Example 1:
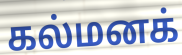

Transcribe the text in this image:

கல்மனக்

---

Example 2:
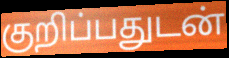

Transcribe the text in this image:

குறிப்பதுடன்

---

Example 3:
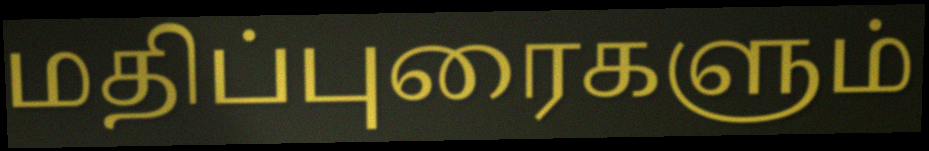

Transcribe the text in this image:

மதிப்புரைகளும்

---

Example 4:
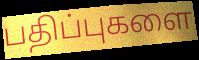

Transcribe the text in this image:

பதிப்புகளை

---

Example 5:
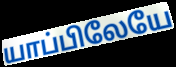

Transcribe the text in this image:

யாப்பிலேயே